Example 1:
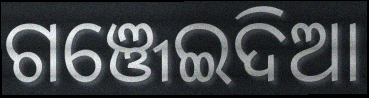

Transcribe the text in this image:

ଗଞ୍ଜେଇଦିଆ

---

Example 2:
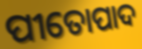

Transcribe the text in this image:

ପୀତୋପାଦ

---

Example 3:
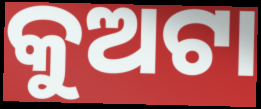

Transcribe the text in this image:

କୁଅଟା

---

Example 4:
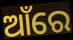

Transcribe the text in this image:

ଆଁରେ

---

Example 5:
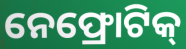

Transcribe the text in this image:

ନେଫ୍ରୋଟିକ୍